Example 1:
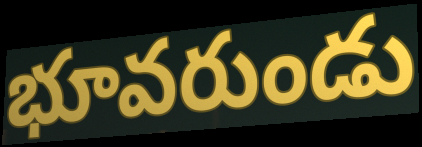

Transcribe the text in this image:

భూవరుండు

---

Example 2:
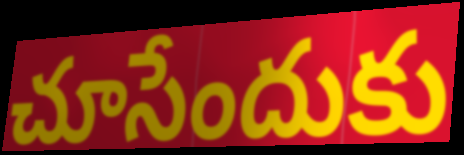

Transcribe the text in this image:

చూసేందుకు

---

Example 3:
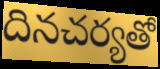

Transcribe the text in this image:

దినచర్యతో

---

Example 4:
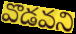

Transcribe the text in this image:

వొడవని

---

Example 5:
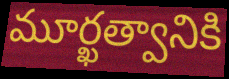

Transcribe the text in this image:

మూర్ఖత్వానికి